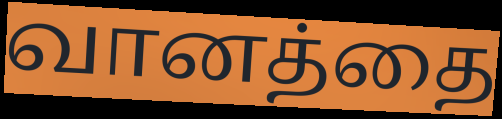
வானத்தை